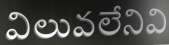
విలువలేనివి